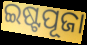
ଇଷ୍ଟପୂଜା